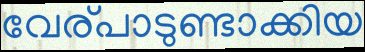
വേര്പാടുണ്ടാക്കിയ